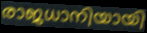
രാജധാനിയായി